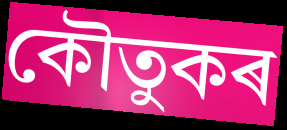
কৌতুকৰ